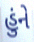
હુંને